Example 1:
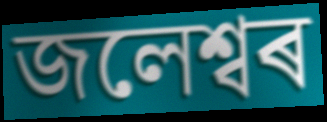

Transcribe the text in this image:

জলেশ্বৰ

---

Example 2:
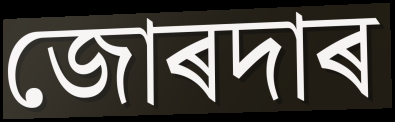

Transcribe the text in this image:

জোৰদাৰ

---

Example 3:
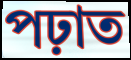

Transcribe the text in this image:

পঢ়াত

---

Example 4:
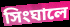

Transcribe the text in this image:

সিংঘালে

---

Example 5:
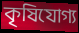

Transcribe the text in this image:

কৃষিযোগ্য